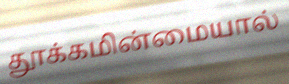
தூக்கமின்மையால்